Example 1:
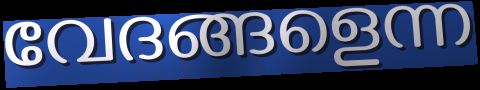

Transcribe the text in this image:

വേദങ്ങളെന്ന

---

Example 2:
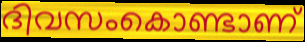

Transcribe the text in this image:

ദിവസംകൊണ്ടാണ്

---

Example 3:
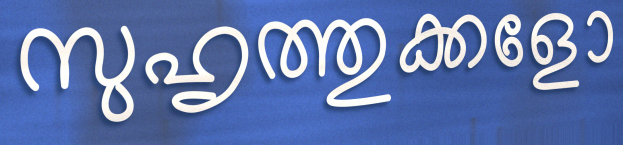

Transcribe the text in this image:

സുഹൃത്തുക്കളോ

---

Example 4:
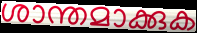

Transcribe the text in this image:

ശാന്തമാക്കുക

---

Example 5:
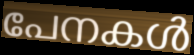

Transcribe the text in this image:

പേനകൾ